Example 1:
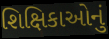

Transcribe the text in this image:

શિક્ષિકાઓનું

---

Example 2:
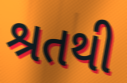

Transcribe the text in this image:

શ્રતથી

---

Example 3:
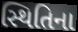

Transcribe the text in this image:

સ્થિતિના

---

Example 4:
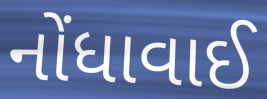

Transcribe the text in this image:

નોંધાવાઈ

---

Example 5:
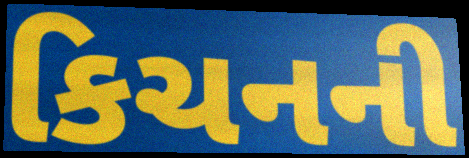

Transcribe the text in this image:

કિચનની